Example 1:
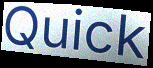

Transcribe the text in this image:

Quick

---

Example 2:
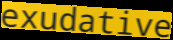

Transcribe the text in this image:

exudative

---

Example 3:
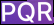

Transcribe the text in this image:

PQR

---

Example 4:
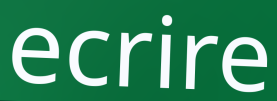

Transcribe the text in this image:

ecrire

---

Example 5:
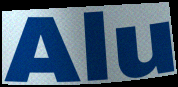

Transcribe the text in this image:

Alu